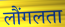
लौंगलता